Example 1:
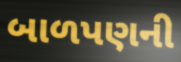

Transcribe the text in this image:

બાળપણની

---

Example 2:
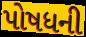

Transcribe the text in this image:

પોષધની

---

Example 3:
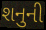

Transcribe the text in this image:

શનુની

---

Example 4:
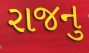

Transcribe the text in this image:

રાજનુ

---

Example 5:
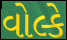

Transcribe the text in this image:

વોલ્કે